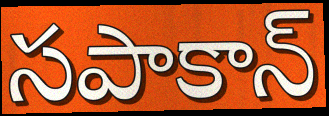
సపాకాన్